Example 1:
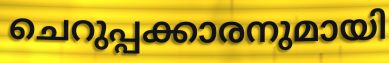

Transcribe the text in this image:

ചെറുപ്പക്കാരനുമായി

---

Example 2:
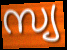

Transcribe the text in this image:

സ്യ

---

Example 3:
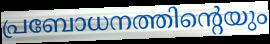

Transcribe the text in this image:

പ്രബോധനത്തിന്റെയും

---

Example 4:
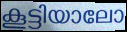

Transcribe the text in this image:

കൂട്ടിയാലോ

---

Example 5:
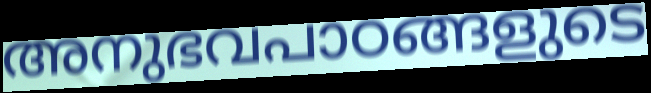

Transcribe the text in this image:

അനുഭവപാഠങ്ങളുടെ